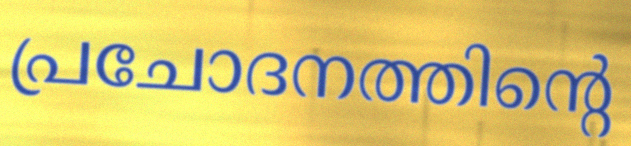
പ്രചോദനത്തിന്റെ